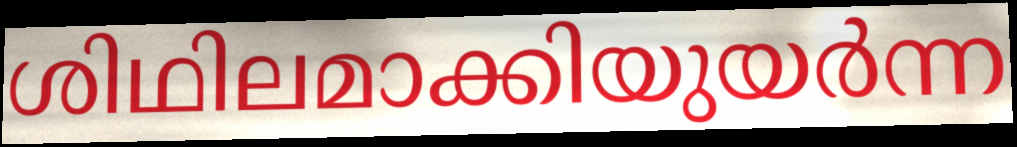
ശിഥിലമാക്കിയുയർന്ന